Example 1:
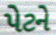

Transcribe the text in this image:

પેટને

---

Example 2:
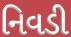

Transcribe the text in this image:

નિવડી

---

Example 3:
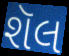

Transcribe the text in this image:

શૅલ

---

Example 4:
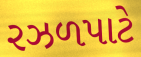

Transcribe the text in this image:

રઝળપાટે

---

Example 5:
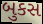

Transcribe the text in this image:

બુકસ